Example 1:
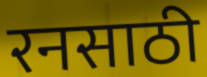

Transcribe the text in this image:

रनसाठी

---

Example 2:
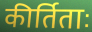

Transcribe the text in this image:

कीर्तिताः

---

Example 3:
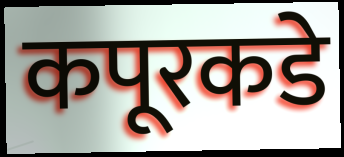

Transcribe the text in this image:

कपूरकडे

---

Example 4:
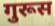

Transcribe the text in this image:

गुरूस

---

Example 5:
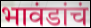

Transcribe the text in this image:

भावंडांचं